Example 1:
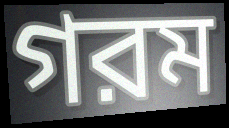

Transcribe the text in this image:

গরম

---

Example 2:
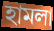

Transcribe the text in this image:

হামলা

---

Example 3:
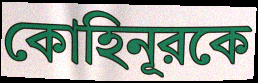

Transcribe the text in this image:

কোহিনূরকে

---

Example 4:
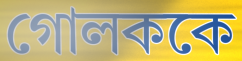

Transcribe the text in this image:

গোলককে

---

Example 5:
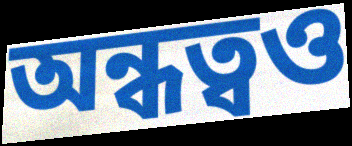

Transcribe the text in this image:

অন্ধত্বও